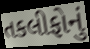
તકલીફોનું